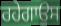
ਰਹੇਗਾਉਸ